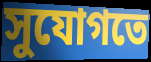
সুযোগতে